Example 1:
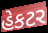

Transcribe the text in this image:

હેકટર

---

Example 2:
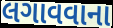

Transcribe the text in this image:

લગાવવાના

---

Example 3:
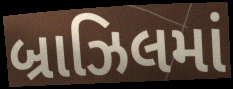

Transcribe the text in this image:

બ્રાઝિલમાં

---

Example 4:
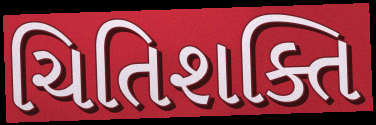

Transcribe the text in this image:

ચિતિશક્તિ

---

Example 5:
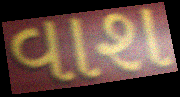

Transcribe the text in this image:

વાશ